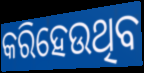
କରିହେଉଥିବ